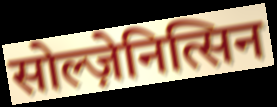
सोल्ज़ेनित्सिन